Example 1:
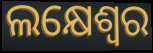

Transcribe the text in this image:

ଲକ୍ଷେଶ୍ଵର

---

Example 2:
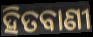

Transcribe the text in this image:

ହିତବାଣୀ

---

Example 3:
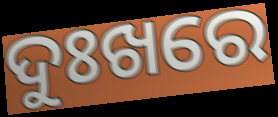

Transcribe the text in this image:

ଦୁଃଖରେ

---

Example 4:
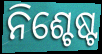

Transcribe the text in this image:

ନିଶ୍ଚେଷ୍ଟ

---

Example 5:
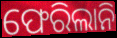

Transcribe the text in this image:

ଫେରିଲାନି